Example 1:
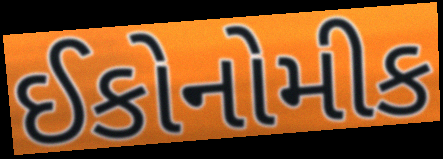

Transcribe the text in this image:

ઈકોનોમીક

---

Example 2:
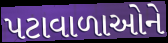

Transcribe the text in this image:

પટાવાળાઓને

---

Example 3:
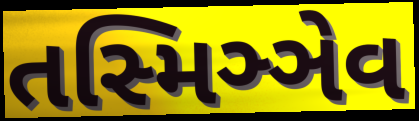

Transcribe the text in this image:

તસ્મિઞ્ઞેવ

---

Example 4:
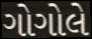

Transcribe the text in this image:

ગોગોલે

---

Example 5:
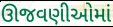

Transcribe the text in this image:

ઊજવણીઓમાં